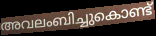
അവലംബിച്ചുകൊണ്ട്